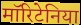
मॉरिटेनिया